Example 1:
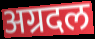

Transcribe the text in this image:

अग्रदल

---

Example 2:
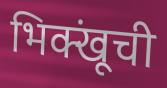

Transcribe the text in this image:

भिक्खूंची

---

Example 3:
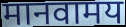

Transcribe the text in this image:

मानवामय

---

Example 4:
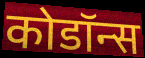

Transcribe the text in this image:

कोडॉन्स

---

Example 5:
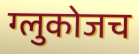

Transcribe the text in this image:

ग्लुकोजच